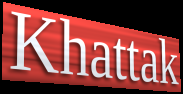
Khattak